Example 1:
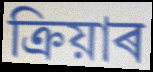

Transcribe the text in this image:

ক্ৰিয়াৰ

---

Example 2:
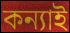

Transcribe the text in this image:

কন্যাই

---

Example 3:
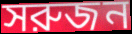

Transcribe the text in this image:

সৰুজন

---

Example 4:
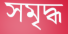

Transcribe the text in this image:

সমৃদ্ধ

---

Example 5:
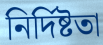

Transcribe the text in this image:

নিৰ্দিষ্টতা